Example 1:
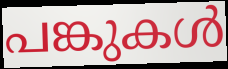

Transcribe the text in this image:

പങ്കുകൾ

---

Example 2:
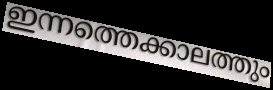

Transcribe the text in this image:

ഇന്നത്തെക്കാലത്തും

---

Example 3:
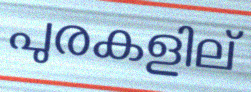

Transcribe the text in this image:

പുരകളില്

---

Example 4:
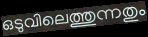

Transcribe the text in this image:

ഒടുവിലെത്തുന്നതും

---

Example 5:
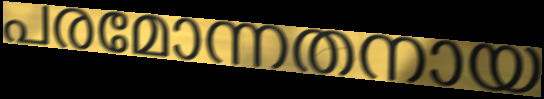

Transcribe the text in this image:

പരമോന്നതനായ